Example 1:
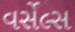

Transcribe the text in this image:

વર્સેલ્સ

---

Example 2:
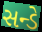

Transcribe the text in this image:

સન્ડે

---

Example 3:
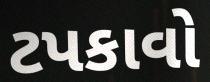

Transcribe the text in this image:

ટપકાવો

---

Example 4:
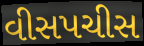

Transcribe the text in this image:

વીસપચીસ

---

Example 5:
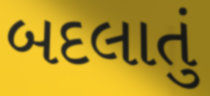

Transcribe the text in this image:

બદલાતું